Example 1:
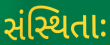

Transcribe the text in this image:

સંસ્થિતાઃ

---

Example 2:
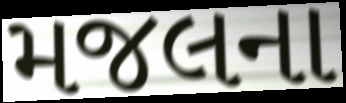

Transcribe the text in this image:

મજલના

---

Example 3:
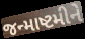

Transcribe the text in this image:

જન્માષ્ટમીને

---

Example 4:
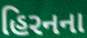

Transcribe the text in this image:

હિરનના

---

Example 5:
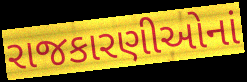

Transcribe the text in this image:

રાજકારણીઓનાં